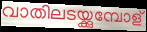
വാതിലടയ്ക്കുമ്പോള്